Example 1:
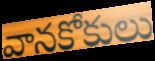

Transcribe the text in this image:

వానకోకులు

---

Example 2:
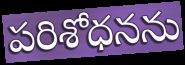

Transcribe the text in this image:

పరిశోధనను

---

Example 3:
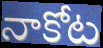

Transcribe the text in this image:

నాకోట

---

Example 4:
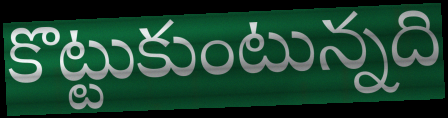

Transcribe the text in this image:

కొట్టుకుంటున్నది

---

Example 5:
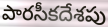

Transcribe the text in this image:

పారసీకదేశపు